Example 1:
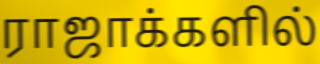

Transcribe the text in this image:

ராஜாக்களில்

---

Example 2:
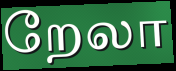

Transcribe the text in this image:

றேலா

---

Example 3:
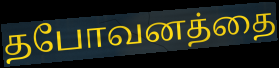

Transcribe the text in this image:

தபோவனத்தை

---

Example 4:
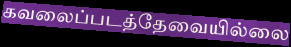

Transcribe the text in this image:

கவலைப்படத்தேவையில்லை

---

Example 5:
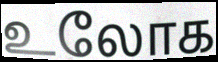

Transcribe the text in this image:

உலோக